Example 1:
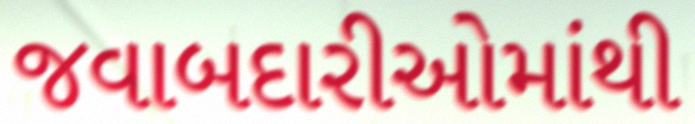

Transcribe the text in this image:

જવાબદારીઓમાંથી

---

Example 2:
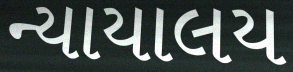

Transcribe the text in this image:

ન્યાયાલય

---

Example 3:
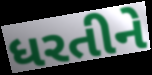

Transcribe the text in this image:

ધરતીને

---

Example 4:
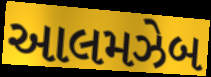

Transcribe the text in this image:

આલમઝેબ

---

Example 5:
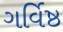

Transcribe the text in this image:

ગર્વિષ્ઠ